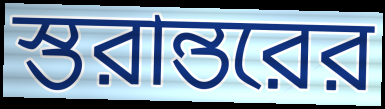
স্তরান্তরের